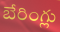
బేరింగ్లు